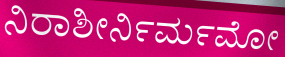
ನಿರಾಶೀರ್ನಿರ್ಮಮೋ